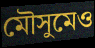
মৌসুমেও